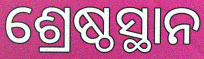
ଶ୍ରେଷ୍ଠସ୍ଥାନ